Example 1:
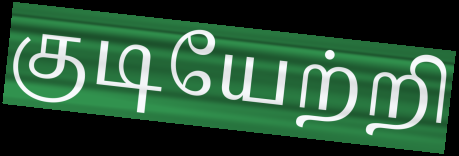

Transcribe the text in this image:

குடியேற்றி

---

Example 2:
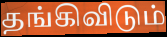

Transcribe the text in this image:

தங்கிவிடும்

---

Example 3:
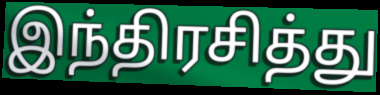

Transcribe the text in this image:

இந்திரசித்து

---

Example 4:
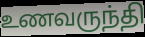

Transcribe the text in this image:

உணவருந்தி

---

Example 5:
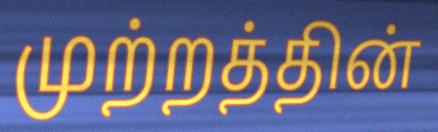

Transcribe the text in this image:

முற்றத்தின்